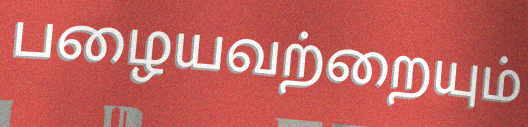
பழையவற்றையும்